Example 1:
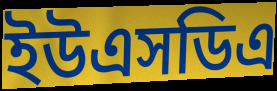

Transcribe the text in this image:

ইউএসডিএ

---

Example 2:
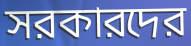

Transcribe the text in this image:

সরকারদের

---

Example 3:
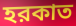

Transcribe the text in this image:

হরকাত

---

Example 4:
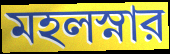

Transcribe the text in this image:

মহলস্নার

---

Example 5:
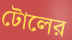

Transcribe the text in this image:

টোলের